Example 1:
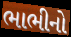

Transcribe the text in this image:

ભાભીનો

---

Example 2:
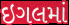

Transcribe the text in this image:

ઇગલમાં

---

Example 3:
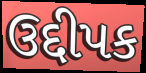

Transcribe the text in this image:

ઉદ્દીપક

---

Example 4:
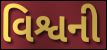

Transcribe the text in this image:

વિશ્વની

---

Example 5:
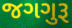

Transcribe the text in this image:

જગગુરૂ